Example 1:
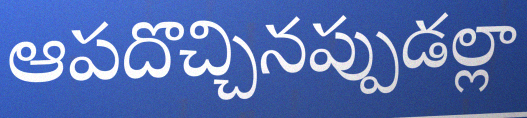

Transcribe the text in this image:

ఆపదొచ్చినప్పుడల్లా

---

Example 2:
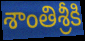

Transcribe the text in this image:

శాంతిశ్రీకి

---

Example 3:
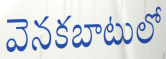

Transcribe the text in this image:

వెనకబాటులో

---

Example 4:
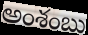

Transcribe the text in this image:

అంశంబు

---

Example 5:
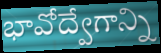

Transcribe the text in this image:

భావోద్వేగాన్ని